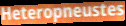
Heteropneustes